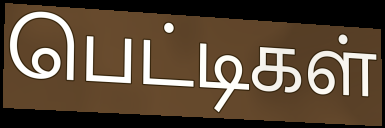
பெட்டிகள்